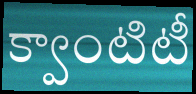
క్వాంటిటీ